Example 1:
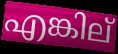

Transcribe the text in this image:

എങ്കില്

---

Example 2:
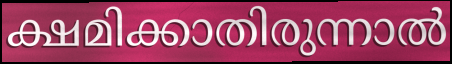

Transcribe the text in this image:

ക്ഷമിക്കാതിരുന്നാൽ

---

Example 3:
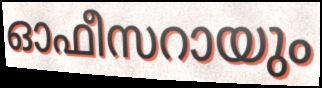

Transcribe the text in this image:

ഓഫീസറായും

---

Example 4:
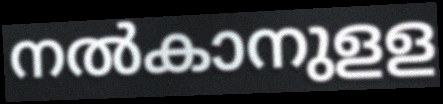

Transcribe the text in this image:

നൽകാനുളള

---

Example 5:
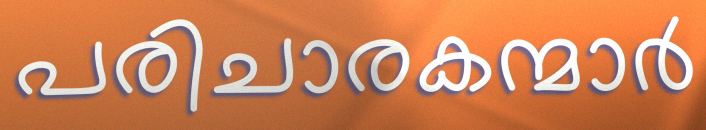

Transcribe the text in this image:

പരിചാരകന്മാർ